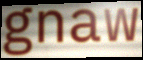
gnaw